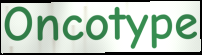
Oncotype